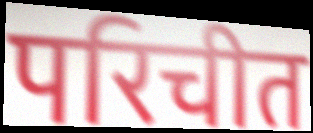
परिचीत